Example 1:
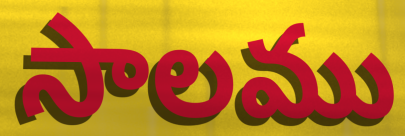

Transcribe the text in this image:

సాలము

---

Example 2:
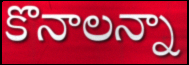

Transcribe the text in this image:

కొనాలన్నా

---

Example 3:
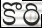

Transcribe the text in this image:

కొరి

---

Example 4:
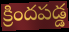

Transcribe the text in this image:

క్రిందపడ్డ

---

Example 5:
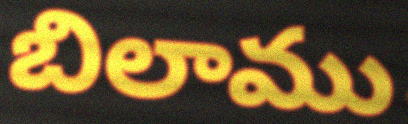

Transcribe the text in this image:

బిలాము